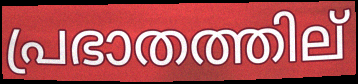
പ്രഭാതത്തില്